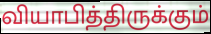
வியாபித்திருக்கும்